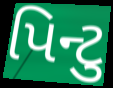
પિન્ટુ